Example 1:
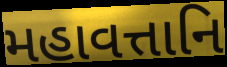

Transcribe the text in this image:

મહાવત્તાનિ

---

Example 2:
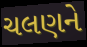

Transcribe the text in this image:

ચલણને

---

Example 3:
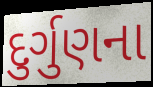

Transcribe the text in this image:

દુર્ગુણના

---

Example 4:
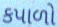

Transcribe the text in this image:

કપાળો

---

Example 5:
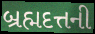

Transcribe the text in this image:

બ્રહ્મદત્તની